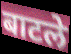
बाटले